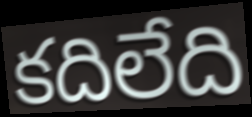
కదిలేది